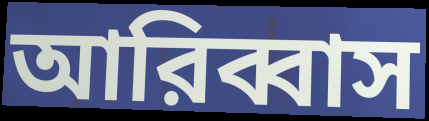
আরিব্বাস